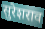
सुरेशराव